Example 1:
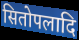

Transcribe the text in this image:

सितोपलादि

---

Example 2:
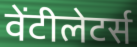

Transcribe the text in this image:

वेंटीलेटर्स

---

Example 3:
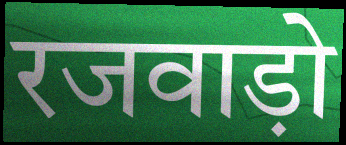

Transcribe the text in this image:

रजवाड़ो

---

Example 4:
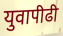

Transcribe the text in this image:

युवापीढी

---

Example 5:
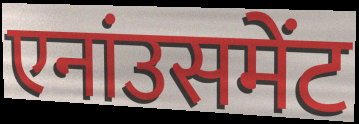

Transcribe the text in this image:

एनांउसमेंट